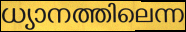
ധ്യാനത്തിലെന്ന